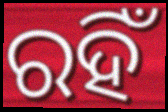
ରହିଁ